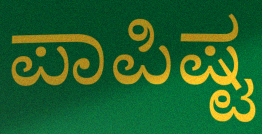
ಪಾಪಿಷ್ಟ